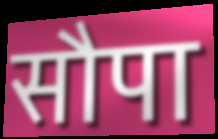
सौपा